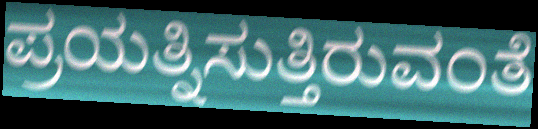
ಪ್ರಯತ್ನಿಸುತ್ತಿರುವಂತೆ